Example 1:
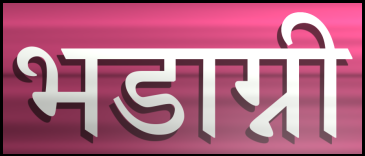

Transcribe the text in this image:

भडाग्नी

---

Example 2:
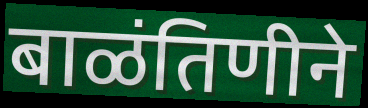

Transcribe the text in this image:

बाळंतिणीने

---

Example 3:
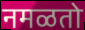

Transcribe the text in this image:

नमळतो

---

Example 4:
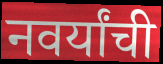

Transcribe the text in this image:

नवर्यांची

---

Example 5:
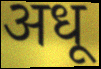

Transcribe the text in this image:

अधू